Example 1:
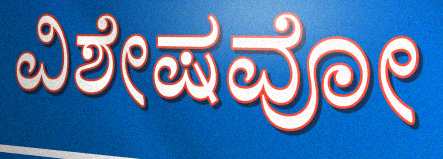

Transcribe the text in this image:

ವಿಶೇಷವೋ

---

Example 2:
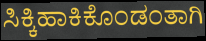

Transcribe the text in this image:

ಸಿಕ್ಕಿಹಾಕಿಕೊಂಡಂತಾಗಿ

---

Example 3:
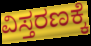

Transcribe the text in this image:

ವಿಸ್ತರಣಕ್ಕೆ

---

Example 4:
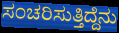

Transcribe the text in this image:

ಸಂಚರಿಸುತ್ತಿದ್ದೆನು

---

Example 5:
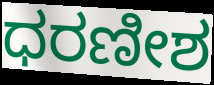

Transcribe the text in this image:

ಧರಣೀಶ